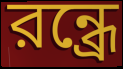
রন্ধ্রে